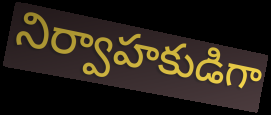
నిర్వాహకుడిగా